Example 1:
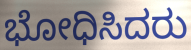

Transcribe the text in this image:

ಭೋಧಿಸಿದರು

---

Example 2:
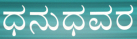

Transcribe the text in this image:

ಧನುಧವರ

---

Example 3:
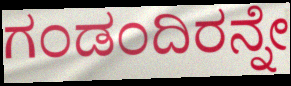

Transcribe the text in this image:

ಗಂಡಂದಿರನ್ನೇ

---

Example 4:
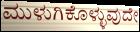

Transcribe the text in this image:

ಮುಳುಗಿಕೊಳ್ಳುವುದೇ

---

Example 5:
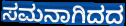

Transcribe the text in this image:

ಸಮನಾಗಿದದ